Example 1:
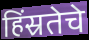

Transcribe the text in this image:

हिंस्रतेचे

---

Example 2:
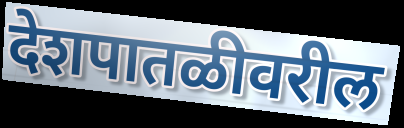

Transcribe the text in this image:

देशपातळीवरील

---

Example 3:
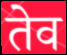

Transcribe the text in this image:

तेव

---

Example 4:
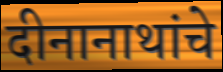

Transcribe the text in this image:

दीनानाथांचे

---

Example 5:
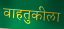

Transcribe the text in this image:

वाहतुकीला